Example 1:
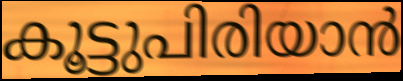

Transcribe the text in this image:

കൂട്ടുപിരിയാൻ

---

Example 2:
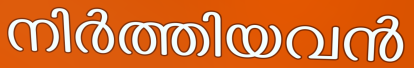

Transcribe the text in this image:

നിർത്തിയവൻ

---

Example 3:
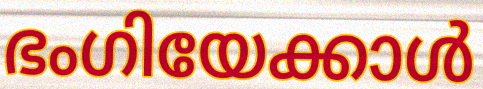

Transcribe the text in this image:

ഭംഗിയേക്കാൾ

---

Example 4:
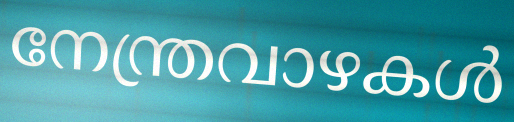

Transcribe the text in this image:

നേന്ത്രവാഴകൾ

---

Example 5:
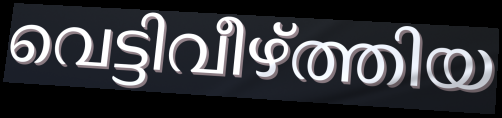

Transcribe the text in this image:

വെട്ടിവീഴ്ത്തിയ